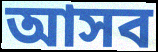
আসব